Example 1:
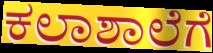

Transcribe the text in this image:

ಕಲಾಶಾಲೆಗೆ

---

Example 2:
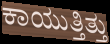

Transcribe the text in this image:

ಕಾಯುತ್ತಿತ್ತು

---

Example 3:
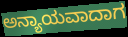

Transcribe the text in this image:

ಅನ್ಯಾಯವಾದಾಗ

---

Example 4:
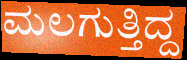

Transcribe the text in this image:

ಮಲಗುತ್ತಿದ್ದ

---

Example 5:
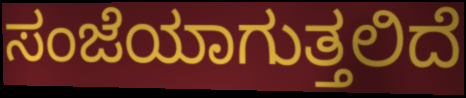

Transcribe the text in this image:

ಸಂಜೆಯಾಗುತ್ತಲಿದೆ